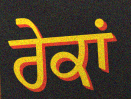
ਰੇਕਾਂ